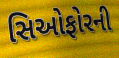
સિઓફોરની